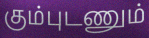
கும்புடணும்